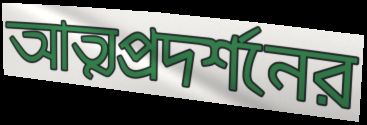
আত্মপ্রদর্শনের